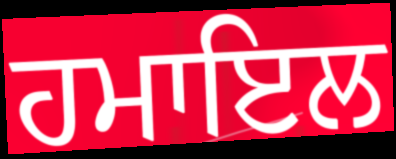
ਹਮਾਇਲ